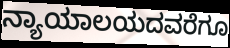
ನ್ಯಾಯಾಲಯದವರೆಗೂ